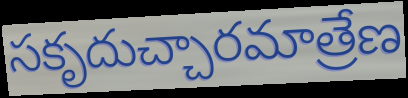
సకృదుచ్చారమాత్రేణ